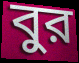
বুর